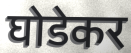
घोडेकर